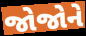
જોજોને